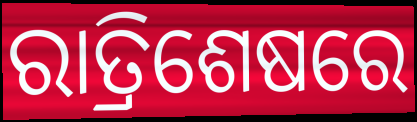
ରାତ୍ରିଶେଷରେ